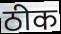
ठीक